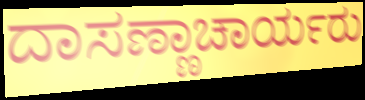
ದಾಸಣ್ಣಾಚಾರ್ಯರು